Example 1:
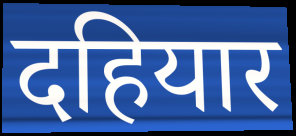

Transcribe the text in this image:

दहियार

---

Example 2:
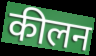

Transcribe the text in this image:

कीलन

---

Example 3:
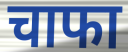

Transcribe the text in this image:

चाफा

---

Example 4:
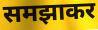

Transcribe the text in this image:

समझाकर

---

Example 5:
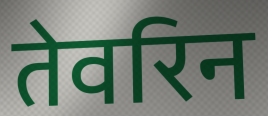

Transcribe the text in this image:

तेवरिन